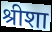
श्रीशा